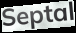
Septal